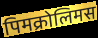
पिमक्रोलिमस